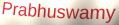
Prabhuswamy